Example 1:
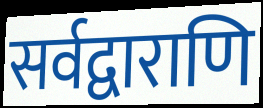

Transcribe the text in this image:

सर्वद्वाराणि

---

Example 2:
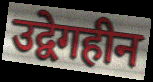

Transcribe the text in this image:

उद्वेगहीन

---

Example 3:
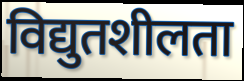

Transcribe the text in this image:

विद्युतशीलता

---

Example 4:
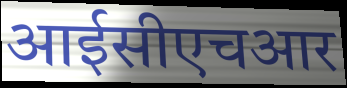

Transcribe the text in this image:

आईसीएचआर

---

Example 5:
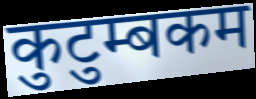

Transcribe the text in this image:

कुटुम्बकम